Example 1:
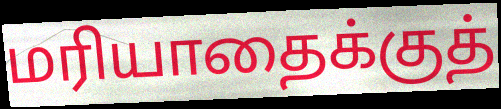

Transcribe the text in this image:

மரியாதைக்குத்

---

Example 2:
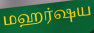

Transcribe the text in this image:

மஹர்ஷய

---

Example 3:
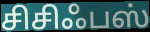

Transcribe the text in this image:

சிசிஃபஸ்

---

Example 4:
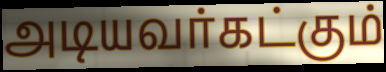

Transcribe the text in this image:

அடியவர்கட்கும்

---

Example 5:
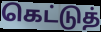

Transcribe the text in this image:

கெட்டுத்